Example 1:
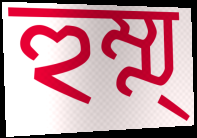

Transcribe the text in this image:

হুম্ম্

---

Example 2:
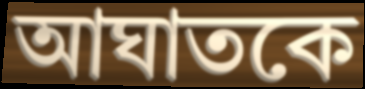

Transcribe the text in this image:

আঘাতকে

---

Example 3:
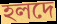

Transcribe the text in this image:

হলদে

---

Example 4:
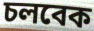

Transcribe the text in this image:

চলবেক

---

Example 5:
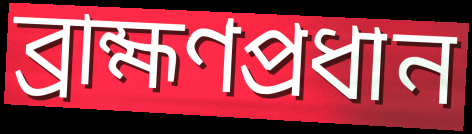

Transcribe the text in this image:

ব্রাহ্মণপ্রধান